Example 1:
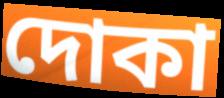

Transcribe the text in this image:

দোকা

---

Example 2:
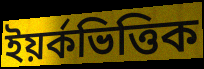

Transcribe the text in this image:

ইয়র্কভিত্তিক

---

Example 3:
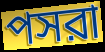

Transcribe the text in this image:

পসরা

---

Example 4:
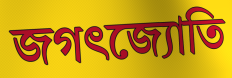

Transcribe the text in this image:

জগৎজ্যোতি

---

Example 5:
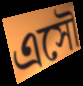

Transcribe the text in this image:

এসৌ